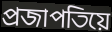
প্ৰজাপতিয়ে